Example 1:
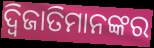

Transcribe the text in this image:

ଦ୍ୱିଜାତିମାନଙ୍କର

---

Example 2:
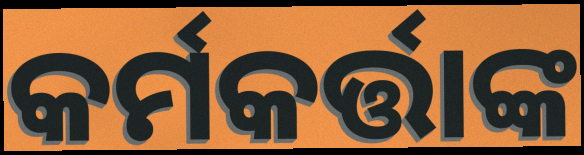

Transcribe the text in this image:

କର୍ମକର୍ତ୍ତାଙ୍କ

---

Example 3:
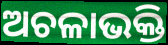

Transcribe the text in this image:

ଅଚଳାଭକ୍ତି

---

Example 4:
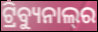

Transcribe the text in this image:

ଟ୍ରିବ୍ୟୁନାଲ୍‍ର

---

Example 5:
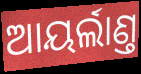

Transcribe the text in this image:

ଆୟର୍ଲାଣ୍ତ